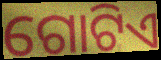
ଗୋଟିଏ